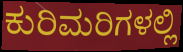
ಕುರಿಮರಿಗಳಲ್ಲಿ